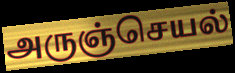
அருஞ்செயல்